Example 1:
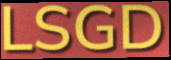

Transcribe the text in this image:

LSGD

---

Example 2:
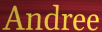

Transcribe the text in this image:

Andree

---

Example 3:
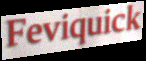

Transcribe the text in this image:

Feviquick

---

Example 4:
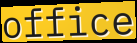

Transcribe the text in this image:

office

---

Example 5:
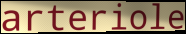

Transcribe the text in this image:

arteriole